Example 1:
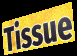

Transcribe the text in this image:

Tissue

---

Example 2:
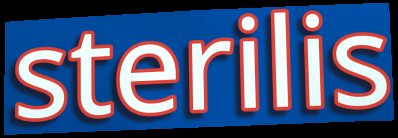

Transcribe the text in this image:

sterilis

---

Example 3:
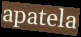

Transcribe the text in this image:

apatela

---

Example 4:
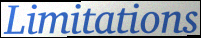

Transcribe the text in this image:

Limitations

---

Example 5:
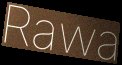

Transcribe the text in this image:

Rawa